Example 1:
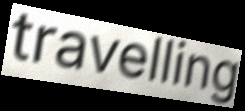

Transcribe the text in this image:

travelling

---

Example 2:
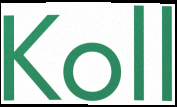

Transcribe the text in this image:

Koll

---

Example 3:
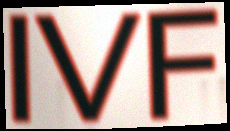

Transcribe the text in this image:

IVF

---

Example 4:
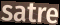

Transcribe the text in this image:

satre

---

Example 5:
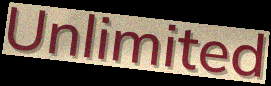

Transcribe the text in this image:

Unlimited